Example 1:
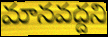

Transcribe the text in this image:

మానవద్దని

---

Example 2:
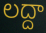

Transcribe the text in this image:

లద్దా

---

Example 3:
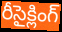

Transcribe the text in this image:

రీసైక్లింగ్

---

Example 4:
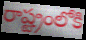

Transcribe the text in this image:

రాష్ట్రంలోకి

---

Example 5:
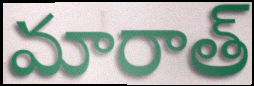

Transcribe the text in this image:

మారాత్